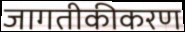
जागतीकीकरण